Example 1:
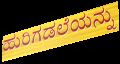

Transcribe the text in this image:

ಹುರಿಗಡಲೆಯನ್ನು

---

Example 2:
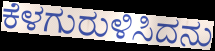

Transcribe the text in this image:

ಕೆಳಗುರುಳಿಸಿದನು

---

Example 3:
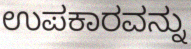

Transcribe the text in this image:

ಉಪಕಾರವನ್ನು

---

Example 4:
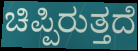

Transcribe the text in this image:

ಚಿಪ್ಪಿರುತ್ತದೆ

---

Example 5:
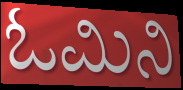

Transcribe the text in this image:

ಓಮಿನಿ